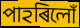
পাহৰিলোঁ